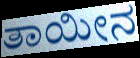
ತಾಯೀನ